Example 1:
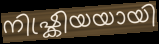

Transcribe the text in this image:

നിഷ്ക്രിയയായി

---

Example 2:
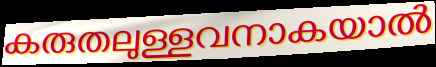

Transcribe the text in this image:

കരുതലുള്ളവനാകയാൽ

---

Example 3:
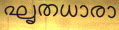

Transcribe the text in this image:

ഘൃതധാരാ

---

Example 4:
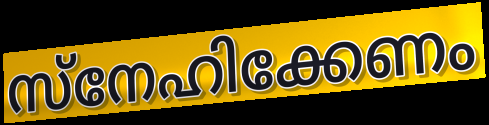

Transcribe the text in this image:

സ്നേഹിക്കേണം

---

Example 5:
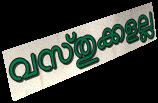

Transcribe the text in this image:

വസ്തുക്കളല്ല